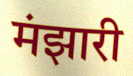
मंझारी